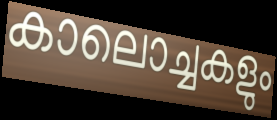
കാലൊച്ചകളും